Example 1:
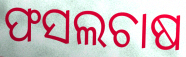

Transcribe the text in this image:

ଫସଲଚାଷ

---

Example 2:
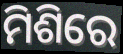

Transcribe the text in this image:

ମିଶିରେ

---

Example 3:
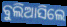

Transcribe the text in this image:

ବୁଲିଆସିଲେ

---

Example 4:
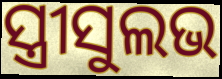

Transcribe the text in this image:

ସ୍ତ୍ରୀସୁଲଭ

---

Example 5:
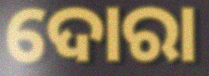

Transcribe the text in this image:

ଦୋରା